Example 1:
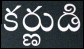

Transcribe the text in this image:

కర్ణుడి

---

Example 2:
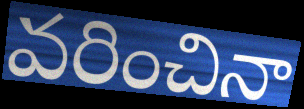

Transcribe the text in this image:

వరించినా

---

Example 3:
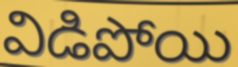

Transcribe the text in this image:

విడిపోయి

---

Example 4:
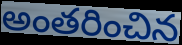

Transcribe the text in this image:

అంతరించిన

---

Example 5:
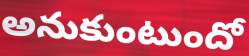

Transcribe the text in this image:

అనుకుంటుందో